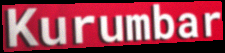
Kurumbar